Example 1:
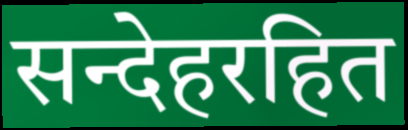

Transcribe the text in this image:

सन्देहरहित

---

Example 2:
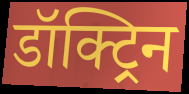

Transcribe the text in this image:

डॉक्ट्रिन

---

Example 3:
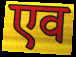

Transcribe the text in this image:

एव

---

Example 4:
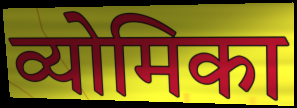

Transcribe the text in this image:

व्योमिका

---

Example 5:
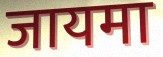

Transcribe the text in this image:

जायमा